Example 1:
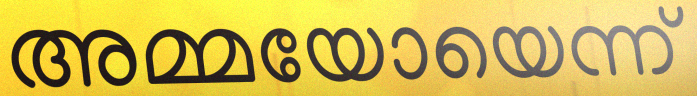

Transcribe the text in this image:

അമ്മയോയെന്ന്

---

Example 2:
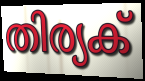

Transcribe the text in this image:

തിര്യക്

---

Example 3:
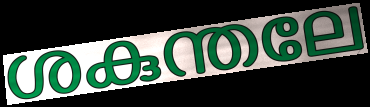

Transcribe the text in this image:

ശകുന്തലേ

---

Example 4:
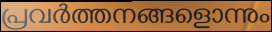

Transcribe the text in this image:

പ്രവർത്തനങ്ങളൊന്നും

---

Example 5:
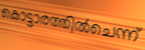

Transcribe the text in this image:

കൊട്ടാരത്തിൽചെന്ന്